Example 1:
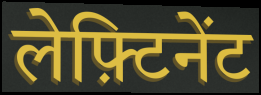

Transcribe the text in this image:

लेफ़्टिनेंट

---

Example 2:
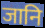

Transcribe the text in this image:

जानि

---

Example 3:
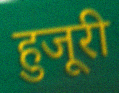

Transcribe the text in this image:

हुजूरी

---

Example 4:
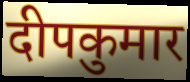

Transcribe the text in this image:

दीपकुमार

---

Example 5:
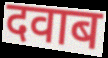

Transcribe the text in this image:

दवाब